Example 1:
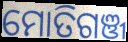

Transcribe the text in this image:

ମୋତିଗଞ୍ଜ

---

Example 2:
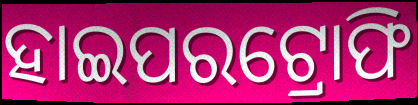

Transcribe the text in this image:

ହାଇପରଟ୍ରୋଫି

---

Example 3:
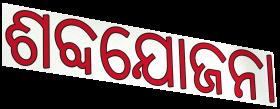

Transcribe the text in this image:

ଶବ୍ଦଯୋଜନା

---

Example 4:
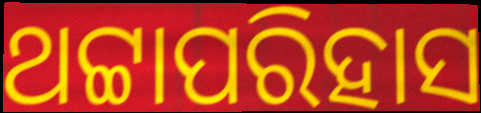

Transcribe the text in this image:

ଥଟ୍ଟାପରିହାସ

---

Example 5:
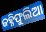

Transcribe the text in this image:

ଜହ୍ନିଫୁଲିଆ